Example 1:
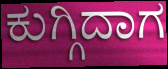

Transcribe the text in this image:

ಕುಗ್ಗಿದಾಗ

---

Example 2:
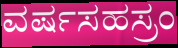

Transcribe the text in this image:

ವರ್ಷಸಹಸ್ರಂ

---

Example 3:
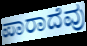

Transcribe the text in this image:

ಪಾರಾದೆವು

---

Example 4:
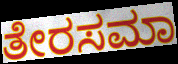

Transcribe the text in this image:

ತೇರಸಮಾ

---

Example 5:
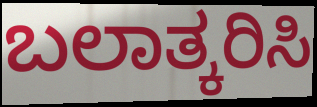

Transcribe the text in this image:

ಬಲಾತ್ಕರಿಸಿ